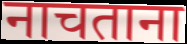
नाचताना